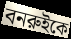
বনরুইকে